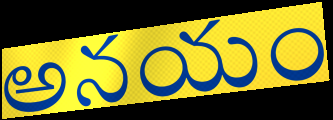
అనయం